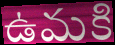
ఉమకి